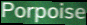
Porpoise